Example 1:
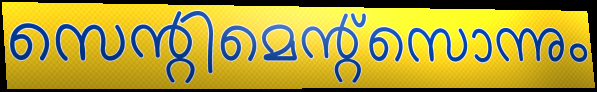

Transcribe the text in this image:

സെന്റിമെന്റ്സൊന്നും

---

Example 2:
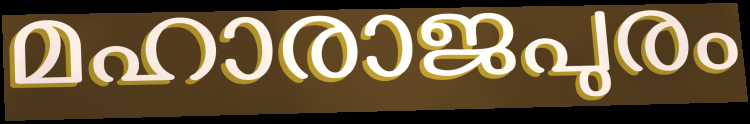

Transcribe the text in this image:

മഹാരാജപുരം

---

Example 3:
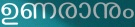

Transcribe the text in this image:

ഉണരാനും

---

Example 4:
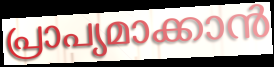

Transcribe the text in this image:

പ്രാപ്യമാക്കാൻ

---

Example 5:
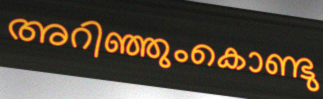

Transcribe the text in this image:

അറിഞ്ഞുംകൊണ്ടു